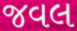
જવલ